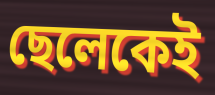
ছেলেকেই